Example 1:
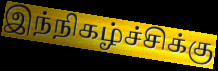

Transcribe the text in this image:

இந்நிகழ்ச்சிக்கு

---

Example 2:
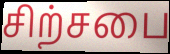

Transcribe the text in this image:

சிற்சபை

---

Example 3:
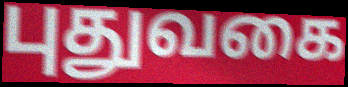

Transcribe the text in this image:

புதுவகை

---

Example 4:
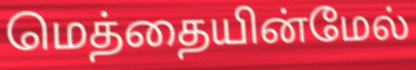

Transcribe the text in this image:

மெத்தையின்மேல்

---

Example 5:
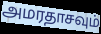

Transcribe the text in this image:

அமரதாசவும்